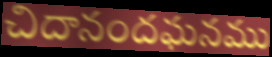
చిదానందఘనము